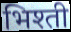
भिश्ती